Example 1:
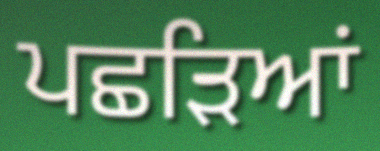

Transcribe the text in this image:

ਪਛੜਿਆਂ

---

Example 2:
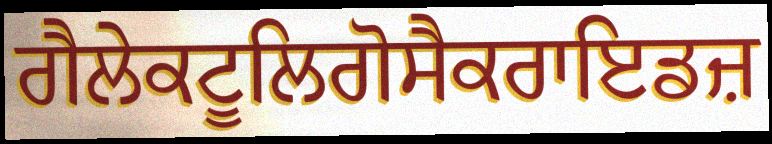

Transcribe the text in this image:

ਗੈਲੇਕਟੂਲਿਗੋਸੈਕਰਾਇਡਜ਼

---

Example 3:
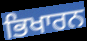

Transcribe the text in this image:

ਭਿਖਾਰਨ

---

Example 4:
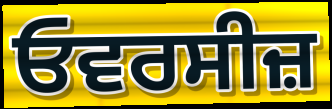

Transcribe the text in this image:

ਓਵਰਸੀਜ਼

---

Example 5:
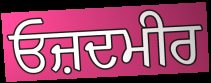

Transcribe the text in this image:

ਓਜ਼ਦਮੀਰ